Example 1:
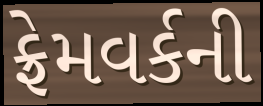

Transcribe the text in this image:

ફ્રેમવર્કની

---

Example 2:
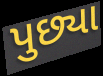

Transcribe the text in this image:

પુછ્યા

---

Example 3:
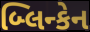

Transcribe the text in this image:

બ્લિન્કેન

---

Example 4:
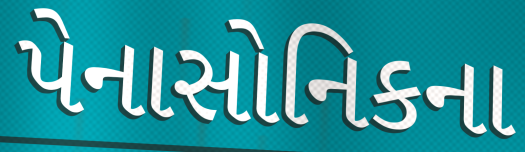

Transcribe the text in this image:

પેનાસોનિકના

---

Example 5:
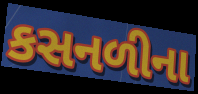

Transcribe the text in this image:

કસનળીના